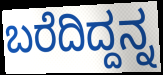
ಬರೆದಿದ್ದನ್ನ